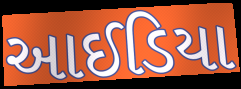
આઈડિયા